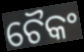
ଚୈକଂ